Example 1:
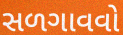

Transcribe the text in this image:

સળગાવવો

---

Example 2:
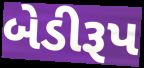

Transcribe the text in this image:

બેડીરૂપ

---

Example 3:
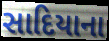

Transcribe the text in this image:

સાદિયાના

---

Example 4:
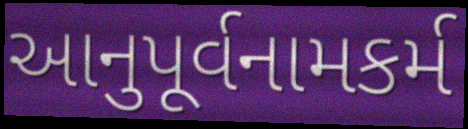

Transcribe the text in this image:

આનુપૂર્વનામકર્મ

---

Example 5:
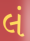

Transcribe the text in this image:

લં